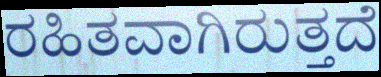
ರಹಿತವಾಗಿರುತ್ತದೆ